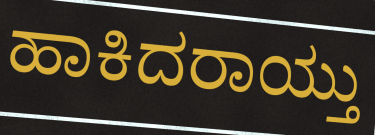
ಹಾಕಿದರಾಯ್ತು